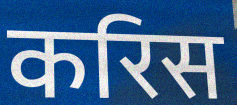
करिस